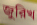
জুরিখ